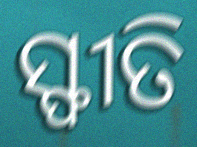
ସ୍ଫୀତି